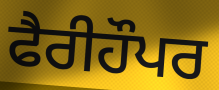
ਫੈਰੀਹੌਪਰ